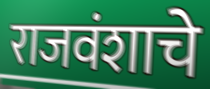
राजवंशाचे